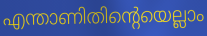
എന്താണിതിന്റെയെല്ലാം